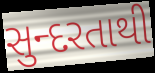
સુન્દરતાથી